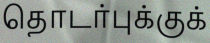
தொடர்புக்குக்